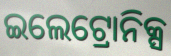
ଇଲେଟ୍ରୋନିକ୍ସ